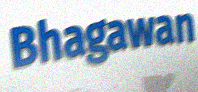
Bhagawan